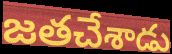
జతచేశాడు